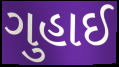
ગુહાઈ